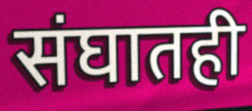
संघातही